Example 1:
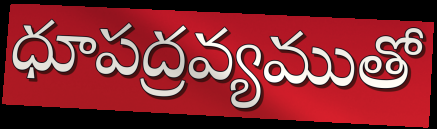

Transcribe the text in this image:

ధూపద్రవ్యముతో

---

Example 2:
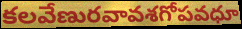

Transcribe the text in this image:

కలవేణురవావశగోపవధూ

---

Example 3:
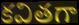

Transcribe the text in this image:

కవితగా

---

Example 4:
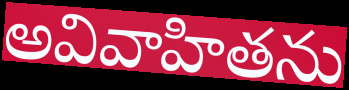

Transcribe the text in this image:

అవివాహితను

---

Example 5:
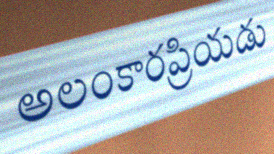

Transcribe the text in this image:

అలంకారప్రియడు